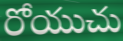
రోయుచు